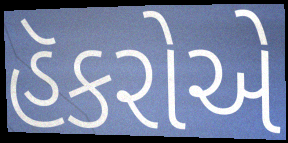
હૅકરોએ